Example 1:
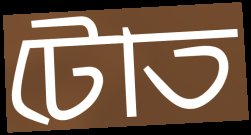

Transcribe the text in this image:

টোত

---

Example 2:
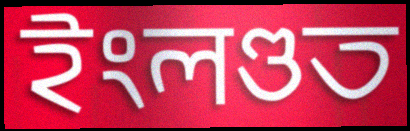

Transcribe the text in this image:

ইংলণ্ডত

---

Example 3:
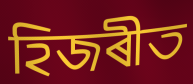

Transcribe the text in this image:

হিজৰীত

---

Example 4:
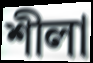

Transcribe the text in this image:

শীলা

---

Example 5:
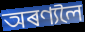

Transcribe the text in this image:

অৰণ্যলৈ